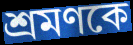
শ্রমণকে